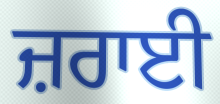
ਜ਼ਰਾਈ